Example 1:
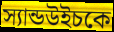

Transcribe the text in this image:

স্যান্ডউইচকে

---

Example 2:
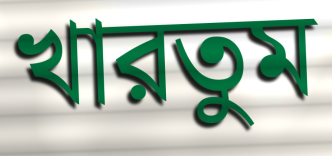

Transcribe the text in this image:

খারতুম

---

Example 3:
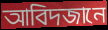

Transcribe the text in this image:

আবিদজানে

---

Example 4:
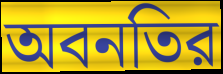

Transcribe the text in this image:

অবনতির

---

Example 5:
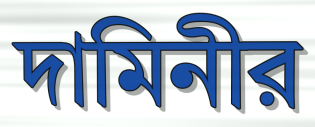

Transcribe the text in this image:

দামিনীর